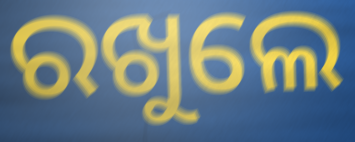
ରଖୁଲେ